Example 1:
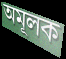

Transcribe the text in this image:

অমূলক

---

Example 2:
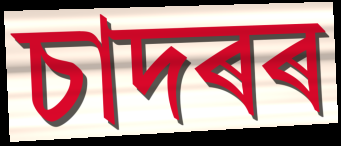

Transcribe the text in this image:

চাদৰৰ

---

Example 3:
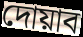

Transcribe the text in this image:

দোয়াব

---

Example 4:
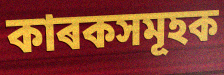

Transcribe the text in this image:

কাৰকসমূহক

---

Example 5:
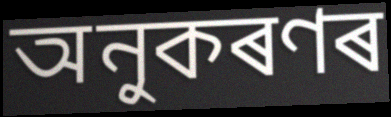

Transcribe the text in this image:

অনুকৰণৰ